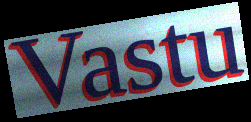
Vastu